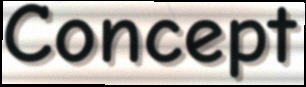
Concept